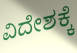
ವಿದೇಶಕ್ಕೆ